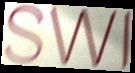
SWI